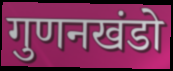
गुणनखंडो